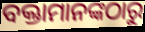
ବକ୍ତାମାନଙ୍କଠାରୁ